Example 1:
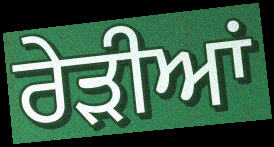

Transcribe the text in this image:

ਰੇੜੀਆਂ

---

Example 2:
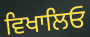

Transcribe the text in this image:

ਵਿਖਾਲਿਓ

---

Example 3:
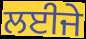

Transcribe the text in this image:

ਲਈਜੇ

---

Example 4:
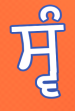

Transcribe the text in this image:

ਸ੍ਵੰ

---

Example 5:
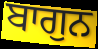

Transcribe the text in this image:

ਬਾਗੁਨ